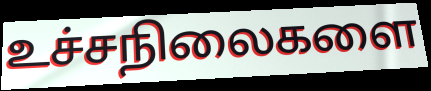
உச்சநிலைகளை